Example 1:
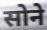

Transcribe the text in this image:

सोने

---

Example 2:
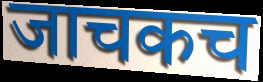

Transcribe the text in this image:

जाचकच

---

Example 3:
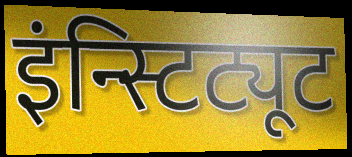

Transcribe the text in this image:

इंन्स्टिट्यूट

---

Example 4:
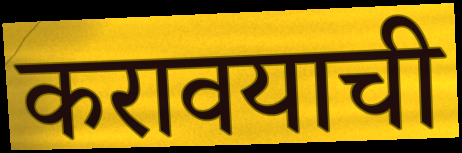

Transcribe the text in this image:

करावयाची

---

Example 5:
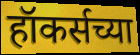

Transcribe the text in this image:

हॉकर्सच्या